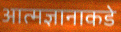
आत्मज्ञानाकडे